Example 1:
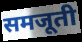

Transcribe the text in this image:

समजूती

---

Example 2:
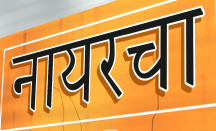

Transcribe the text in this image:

नायरचा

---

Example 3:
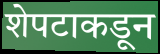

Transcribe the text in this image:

शेपटाकडून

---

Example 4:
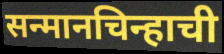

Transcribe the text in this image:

सन्मानचिन्हाची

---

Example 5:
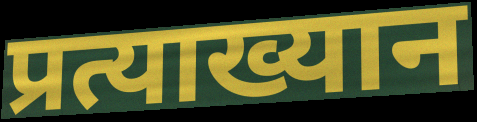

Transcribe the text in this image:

प्रत्याख्यान